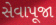
સેવાપૂજા